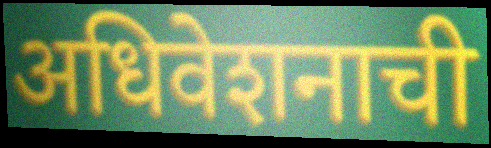
अधिवेशनाची